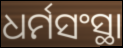
ଧର୍ମସଂସ୍ଥା